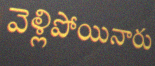
వెళ్లిపోయినారు